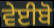
ਵੇਈਬੋ